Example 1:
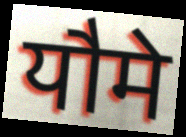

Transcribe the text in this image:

यौमे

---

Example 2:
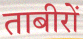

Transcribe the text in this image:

ताबीरों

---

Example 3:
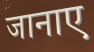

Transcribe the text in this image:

जानाए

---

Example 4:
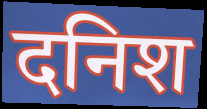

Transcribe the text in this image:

दनिश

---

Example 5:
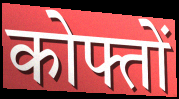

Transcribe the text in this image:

कोफ्तों